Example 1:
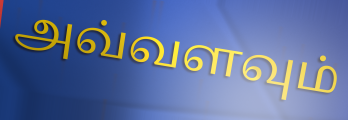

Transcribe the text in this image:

அவ்வளவும்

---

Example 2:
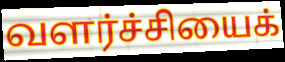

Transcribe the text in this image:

வளர்ச்சியைக்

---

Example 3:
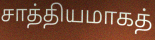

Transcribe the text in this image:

சாத்தியமாகத்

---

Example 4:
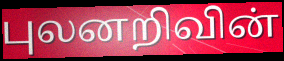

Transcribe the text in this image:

புலனறிவின்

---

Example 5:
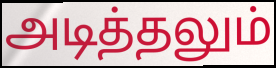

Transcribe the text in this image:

அடித்தலும்